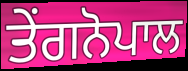
ਤੇਂਗਨੋਪਾਲ